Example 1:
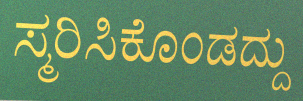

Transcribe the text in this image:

ಸ್ಮರಿಸಿಕೊಂಡದ್ದು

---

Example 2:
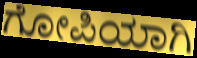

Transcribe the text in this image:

ಗೋಪಿಯಾಗಿ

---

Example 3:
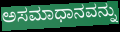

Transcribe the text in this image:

ಅಸಮಾಧಾನವನ್ನು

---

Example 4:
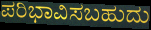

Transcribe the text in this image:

ಪರಿಭಾವಿಸಬಹುದು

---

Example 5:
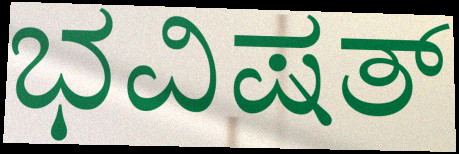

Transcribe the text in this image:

ಭವಿಷತ್